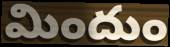
మిందుం